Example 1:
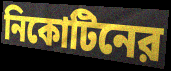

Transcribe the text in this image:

নিকোটিনের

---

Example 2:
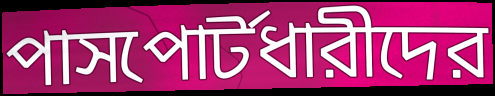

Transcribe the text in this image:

পাসপোর্টধারীদের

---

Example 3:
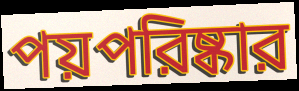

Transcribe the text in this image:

পয়পরিষ্কার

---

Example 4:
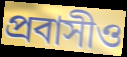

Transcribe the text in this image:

প্রবাসীও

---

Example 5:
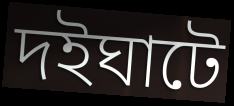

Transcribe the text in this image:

দইঘাটে